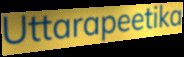
Uttarapeetika